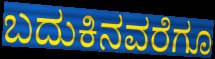
ಬದುಕಿನವರೆಗೂ